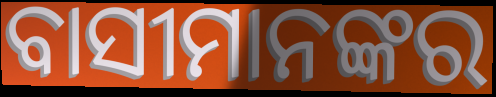
ବାସୀମାନଙ୍କର